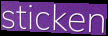
sticken